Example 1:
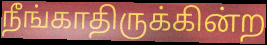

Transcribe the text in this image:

நீங்காதிருக்கின்ற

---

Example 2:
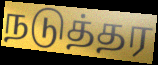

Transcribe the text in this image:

நடுத்தர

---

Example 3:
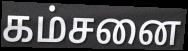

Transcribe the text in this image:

கம்சனை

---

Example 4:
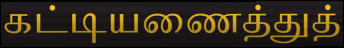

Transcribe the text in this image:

கட்டியணைத்துத்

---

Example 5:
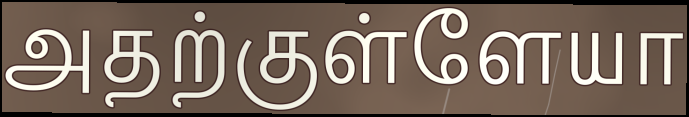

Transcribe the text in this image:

அதற்குள்ளேயா